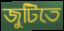
জুটিতে